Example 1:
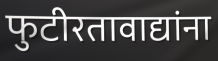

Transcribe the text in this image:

फुटीरतावाद्यांना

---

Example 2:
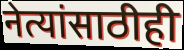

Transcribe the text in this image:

नेत्यांसाठीही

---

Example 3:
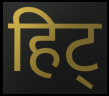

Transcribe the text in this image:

हिट्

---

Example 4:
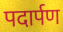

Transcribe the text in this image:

पदार्पण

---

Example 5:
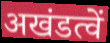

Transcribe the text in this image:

अखंडत्वें